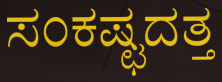
ಸಂಕಷ್ಟದತ್ತ